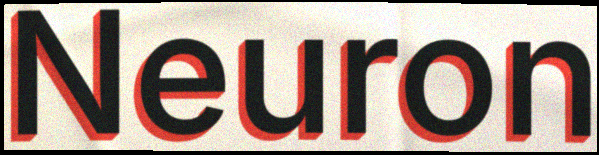
Neuron